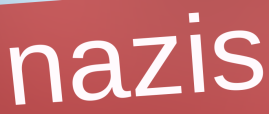
nazis